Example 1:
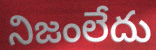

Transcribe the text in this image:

నిజంలేదు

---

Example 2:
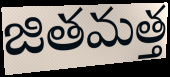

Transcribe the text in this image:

జితమత్త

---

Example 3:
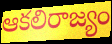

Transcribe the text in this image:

ఆకలిరాజ్యం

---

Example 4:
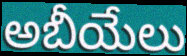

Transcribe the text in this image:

అబీయేలు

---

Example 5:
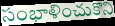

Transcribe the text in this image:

సంభాళించుకొని